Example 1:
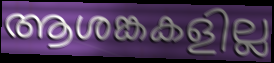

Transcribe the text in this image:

ആശങ്കകളില്ല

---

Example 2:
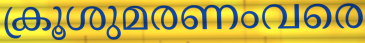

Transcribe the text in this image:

ക്രൂശുമരണംവരെ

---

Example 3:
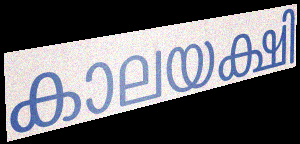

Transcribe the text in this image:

കാലയക്ഷി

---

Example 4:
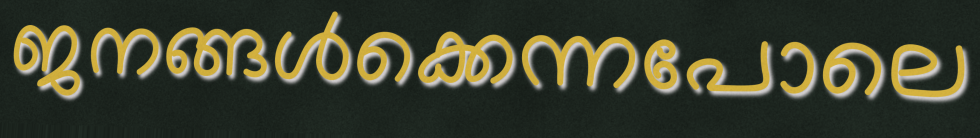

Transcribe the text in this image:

ജനങ്ങൾക്കെന്നപോലെ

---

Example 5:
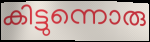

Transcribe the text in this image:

കിട്ടുന്നൊരു